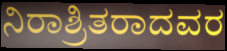
ನಿರಾಶ್ರಿತರಾದವರ